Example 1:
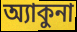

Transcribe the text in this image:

অ্যাকুনা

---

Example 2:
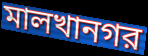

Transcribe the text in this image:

মালখানগর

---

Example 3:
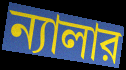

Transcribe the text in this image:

ন্যালার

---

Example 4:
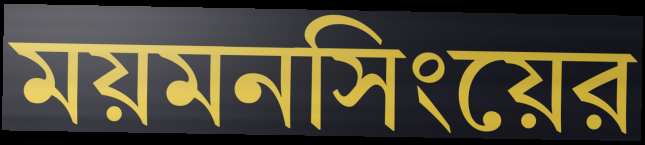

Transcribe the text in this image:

ময়মনসিংয়ের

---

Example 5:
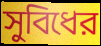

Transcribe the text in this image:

সুবিধের